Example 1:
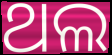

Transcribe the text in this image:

ଥଲ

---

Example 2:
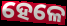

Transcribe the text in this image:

ହେଳେ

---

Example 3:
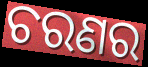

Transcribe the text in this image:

ଚରଣର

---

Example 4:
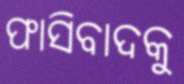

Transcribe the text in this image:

ଫାସିବାଦକୁ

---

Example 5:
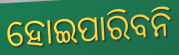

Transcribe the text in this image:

ହୋଇପାରିବନି